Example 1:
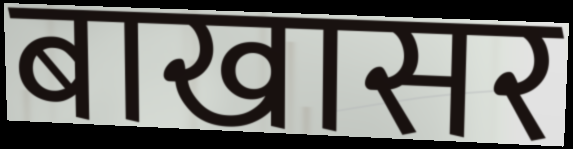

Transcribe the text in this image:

बाखासर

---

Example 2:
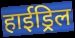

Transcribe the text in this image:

हाईड्रिल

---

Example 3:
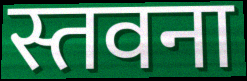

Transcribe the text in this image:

स्तवना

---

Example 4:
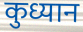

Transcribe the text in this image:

कुध्यान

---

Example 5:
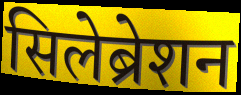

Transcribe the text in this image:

सिलेब्रेशन